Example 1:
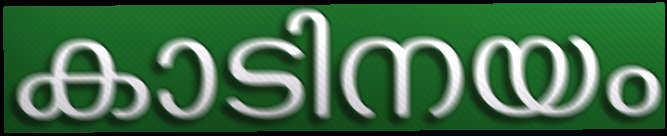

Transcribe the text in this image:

കാടിനയം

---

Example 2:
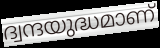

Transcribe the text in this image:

ദ്വന്ദയുദ്ധമാണ്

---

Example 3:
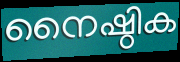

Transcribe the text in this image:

നൈഷ്ഠിക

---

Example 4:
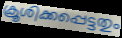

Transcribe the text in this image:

ക്രൂശിക്കപ്പെട്ടതും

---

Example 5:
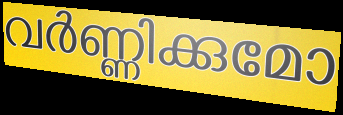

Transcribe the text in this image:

വർണ്ണിക്കുമോ